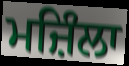
ਮਜ਼ਿੰਲਾ